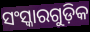
ସଂସ୍କାରଗୁଡ଼ିକ